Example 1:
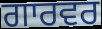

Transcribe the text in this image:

ਗਾਰਵਰ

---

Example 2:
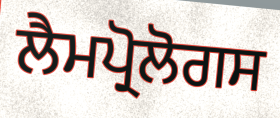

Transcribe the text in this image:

ਲੈਮਪ੍ਰੋਲੋਗਸ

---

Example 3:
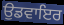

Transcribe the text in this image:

ਉਡਵਾਇਰ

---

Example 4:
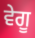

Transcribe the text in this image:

ਵੇਗੂ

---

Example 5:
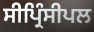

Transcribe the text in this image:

ਸੀਪ੍ਰਿੰਸੀਪਲ